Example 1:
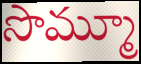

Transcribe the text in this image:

సొమ్మూ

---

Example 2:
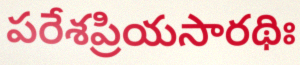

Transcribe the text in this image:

పరేశప్రియసారథిః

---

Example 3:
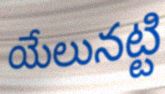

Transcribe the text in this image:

యేలునట్టి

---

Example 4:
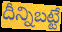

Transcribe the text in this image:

దీన్నిబట్టే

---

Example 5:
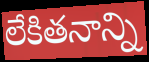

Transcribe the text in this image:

లేకితనాన్ని